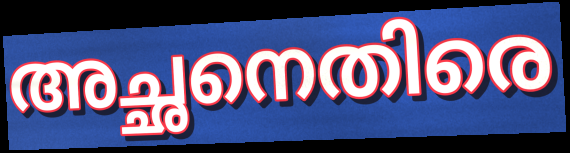
അച്ഛനെതിരെ